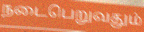
நடைபெறுவதும்